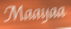
Maayaa